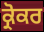
ਕ੍ਰੋਕਰ